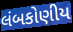
લંબકોણીય